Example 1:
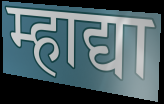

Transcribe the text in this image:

म्हाद्या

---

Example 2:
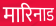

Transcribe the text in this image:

मारिनाड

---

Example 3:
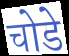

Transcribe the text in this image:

चोडे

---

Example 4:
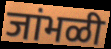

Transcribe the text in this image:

जांभळी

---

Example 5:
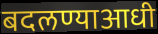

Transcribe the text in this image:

बदलण्याआधी